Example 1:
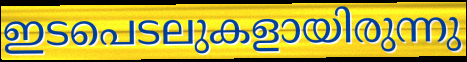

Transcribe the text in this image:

ഇടപെടലുകളായിരുന്നു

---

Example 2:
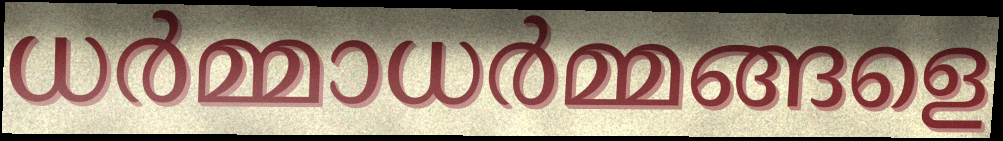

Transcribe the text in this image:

ധർമ്മാധർമ്മങ്ങളെ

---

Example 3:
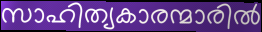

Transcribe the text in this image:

സാഹിത്യകാരന്മാരിൽ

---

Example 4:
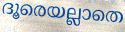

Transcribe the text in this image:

ദൂരെയല്ലാതെ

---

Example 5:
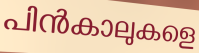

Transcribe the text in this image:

പിൻകാലുകളെ